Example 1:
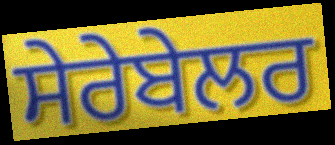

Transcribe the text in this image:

ਸੇਰੇਬੇਲਰ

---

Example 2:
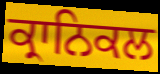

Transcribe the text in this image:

ਕ੍ਰਾਨਿਕਲ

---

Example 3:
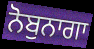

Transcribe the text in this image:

ਨੋਬੁਨਾਗਾ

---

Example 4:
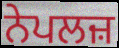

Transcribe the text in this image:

ਨੇਪਲਜ਼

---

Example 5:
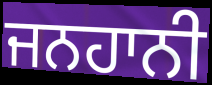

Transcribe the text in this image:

ਜਨਹਾਨੀ